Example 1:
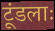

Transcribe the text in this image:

टूंडलाः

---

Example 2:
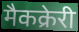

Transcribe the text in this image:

मैकक्रेरी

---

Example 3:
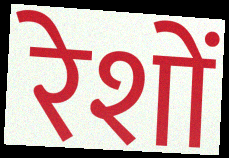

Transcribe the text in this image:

रेशों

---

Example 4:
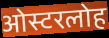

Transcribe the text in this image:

ओस्टरलोह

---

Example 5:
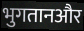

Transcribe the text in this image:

भुगतानऔर